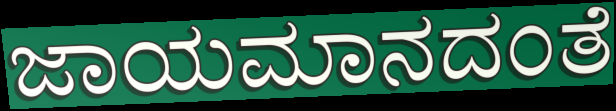
ಜಾಯಮಾನದಂತೆ